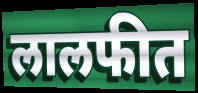
लालफीत